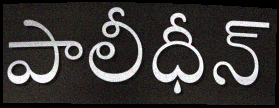
పాలీధీన్